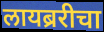
लायब्ररीचा